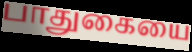
பாதுகையை